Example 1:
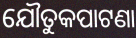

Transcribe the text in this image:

ଯୌତୁକପାଟଣା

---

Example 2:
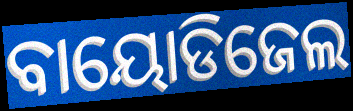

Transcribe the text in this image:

ବାୟୋଡିଜେଲ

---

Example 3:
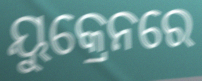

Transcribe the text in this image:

ୟୁକ୍ରେନରେ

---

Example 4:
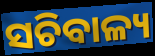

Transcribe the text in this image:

ସଚିବାଳ୍ୟ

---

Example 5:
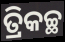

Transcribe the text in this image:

ତ୍ରିକଚ୍ଛ